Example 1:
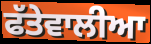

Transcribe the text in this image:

ਫੱਤੇਵਾਲੀਆ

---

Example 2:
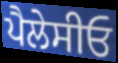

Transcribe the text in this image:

ਪੈਲੇਸੀਓ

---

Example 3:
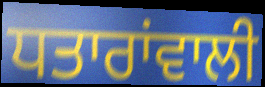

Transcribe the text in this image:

ਧਤਾਰਾਂਵਾਲੀ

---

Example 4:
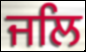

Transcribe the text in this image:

ਜਲਿ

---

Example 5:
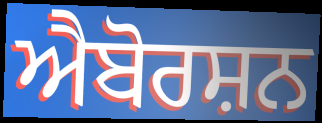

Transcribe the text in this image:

ਐਬੋਰਸ਼ਨ